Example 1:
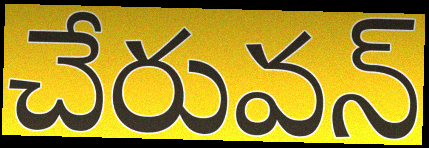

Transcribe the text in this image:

చేరువన్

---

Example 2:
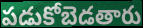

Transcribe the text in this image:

పడుకోబెడతారు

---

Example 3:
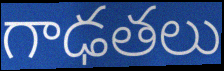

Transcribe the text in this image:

గాఢతలు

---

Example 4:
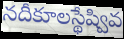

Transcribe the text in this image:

నదీకూలస్థేష్వివ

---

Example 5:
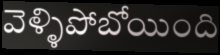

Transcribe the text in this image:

వెళ్ళిపోబోయింది